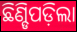
ଛିଣ୍ଡିପଡ଼ିଲା